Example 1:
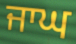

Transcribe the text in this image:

ਜਾਘ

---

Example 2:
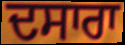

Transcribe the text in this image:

ਦਸਾਰਾ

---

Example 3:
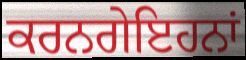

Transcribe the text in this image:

ਕਰਨਗੇਇਹਨਾਂ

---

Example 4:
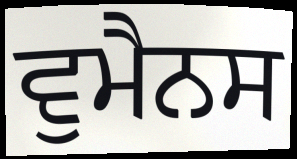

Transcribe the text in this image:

ਵੁਮੈਨਸ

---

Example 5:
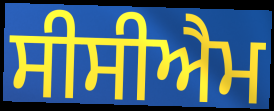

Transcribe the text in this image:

ਸੀਸੀਐਮ